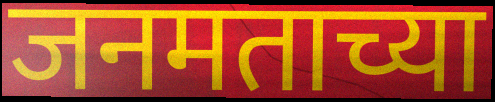
जनमताच्या